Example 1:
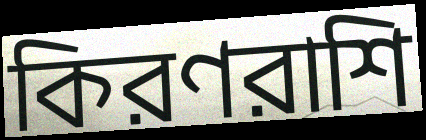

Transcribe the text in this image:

কিরণরাশি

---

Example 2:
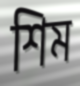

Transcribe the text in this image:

শিম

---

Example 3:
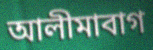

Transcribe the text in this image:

আলীমাবাগ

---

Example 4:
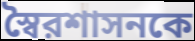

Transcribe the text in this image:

স্বৈরশাসনকে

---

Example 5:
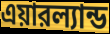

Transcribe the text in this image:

এয়ারল্যান্ড